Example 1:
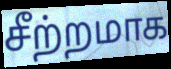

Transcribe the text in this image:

சீற்றமாக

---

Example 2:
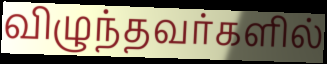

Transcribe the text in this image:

விழுந்தவர்களில்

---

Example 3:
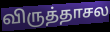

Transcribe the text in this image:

விருத்தாசல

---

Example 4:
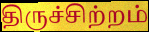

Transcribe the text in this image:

திருச்சிற்றம்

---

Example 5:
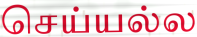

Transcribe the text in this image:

செய்யல்ல